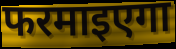
फरमाइएगा